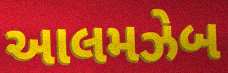
આલમઝેબ